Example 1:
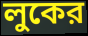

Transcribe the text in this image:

লুকের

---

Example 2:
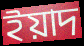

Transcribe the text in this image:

ইয়াদ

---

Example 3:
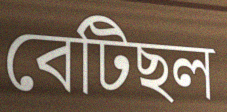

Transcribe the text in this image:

বেটিছল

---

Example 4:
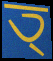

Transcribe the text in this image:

ত্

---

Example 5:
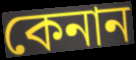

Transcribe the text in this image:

কেনান